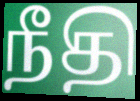
நீதி